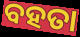
ବହତା